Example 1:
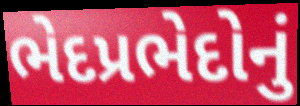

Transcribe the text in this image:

ભેદપ્રભેદોનું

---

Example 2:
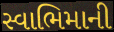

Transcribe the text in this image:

સ્વાભિમાની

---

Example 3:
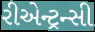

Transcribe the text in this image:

રીએન્ટ્રન્સી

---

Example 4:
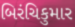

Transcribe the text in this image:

બિરંચિકુમાર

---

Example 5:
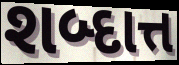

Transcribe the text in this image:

શબ્દાત્ત